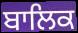
ਬਾਲਿਕ